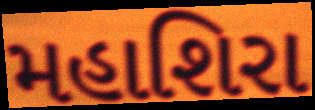
મહાશિરા